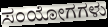
ಸಂಯೋಗಗಳು